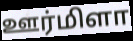
ஊர்மிளா